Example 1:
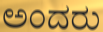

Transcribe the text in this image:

ಅಂದರು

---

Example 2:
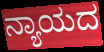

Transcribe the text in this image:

ನ್ಯಾಯದ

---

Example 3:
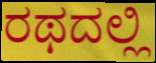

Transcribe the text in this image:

ರಥದಲ್ಲಿ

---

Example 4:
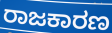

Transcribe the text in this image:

ರಾಜಕಾರಣ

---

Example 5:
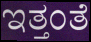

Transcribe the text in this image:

ಇತ್ತಂತೆ